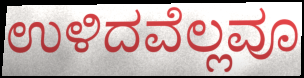
ಉಳಿದವೆಲ್ಲವೂ